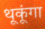
थूकूंगा